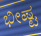
ಭೀಷ್ಟ